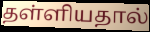
தள்ளியதால்